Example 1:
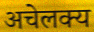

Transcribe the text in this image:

अचेलक्य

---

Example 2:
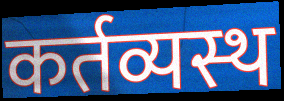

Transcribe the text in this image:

कर्तव्यस्थ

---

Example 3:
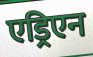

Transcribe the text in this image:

एड्रिएन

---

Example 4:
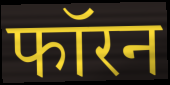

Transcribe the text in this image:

फॉरन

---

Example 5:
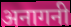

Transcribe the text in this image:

अनागनी